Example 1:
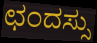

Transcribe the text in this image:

ಛಂದಸ್ಸು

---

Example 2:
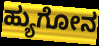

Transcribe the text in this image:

ಹ್ಯುಗೋನ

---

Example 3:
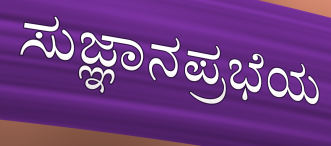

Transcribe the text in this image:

ಸುಜ್ಞಾನಪ್ರಭೆಯ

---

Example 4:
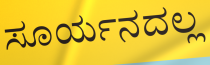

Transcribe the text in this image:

ಸೂರ್ಯನದಲ್ಲ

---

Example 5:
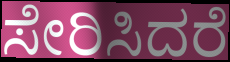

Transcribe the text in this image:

ಸೇರಿಸಿದರೆ